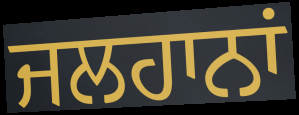
ਜਲਹਾਨਾਂ